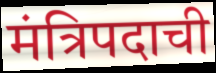
मंत्रिपदाची